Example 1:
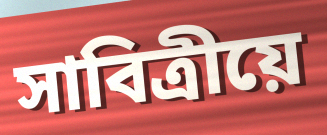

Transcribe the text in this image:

সাবিত্ৰীয়ে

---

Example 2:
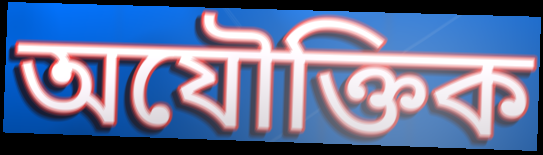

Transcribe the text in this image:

অযৌক্তিক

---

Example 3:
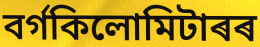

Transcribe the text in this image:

বৰ্গকিলোমিটাৰৰ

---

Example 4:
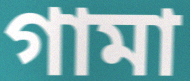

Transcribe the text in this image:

গামা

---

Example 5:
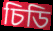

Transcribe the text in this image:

চিডি